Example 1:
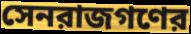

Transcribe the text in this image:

সেনরাজগণের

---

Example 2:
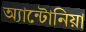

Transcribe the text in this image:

অ্যান্টোনিয়া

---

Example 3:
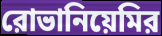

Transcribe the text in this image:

রোভানিয়েমির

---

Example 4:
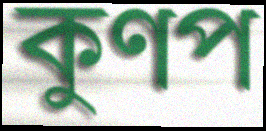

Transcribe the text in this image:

কুণপ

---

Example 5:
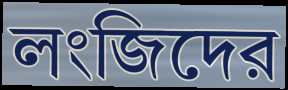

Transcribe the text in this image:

লংজিদের